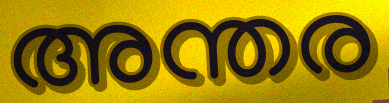
അന്തര